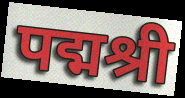
पद्मश्री